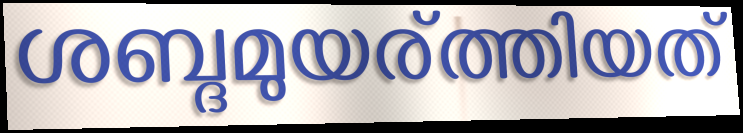
ശബ്ദമുയര്ത്തിയത്